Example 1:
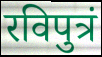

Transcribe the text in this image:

रविपुत्रं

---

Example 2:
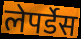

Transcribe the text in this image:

लेपर्डेस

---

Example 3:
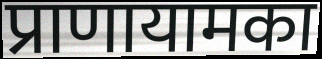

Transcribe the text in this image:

प्राणायामका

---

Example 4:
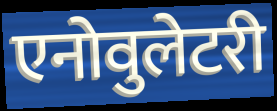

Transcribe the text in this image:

एनोवुलेटरी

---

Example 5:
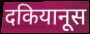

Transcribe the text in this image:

दकियानूस